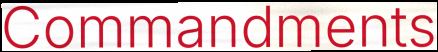
Commandments